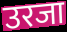
उरजा